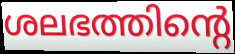
ശലഭത്തിന്റെ